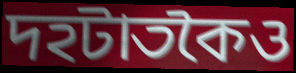
দহটাতকৈও